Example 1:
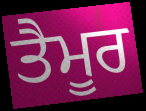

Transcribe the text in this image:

ਤੈਮੂਰ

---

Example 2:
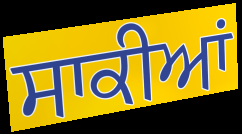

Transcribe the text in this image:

ਸਾਕੀਆਂ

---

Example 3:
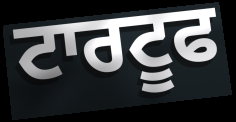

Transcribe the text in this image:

ਟਾਰਟੂਫ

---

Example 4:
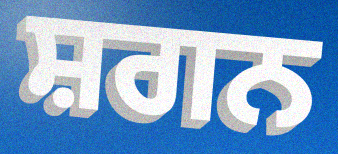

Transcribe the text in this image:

ਸ਼ਗਨ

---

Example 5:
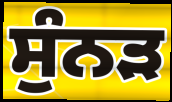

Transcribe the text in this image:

ਸੁੰਨੜ